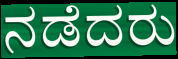
ನಡೆದರು